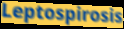
Leptospirosis